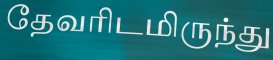
தேவரிடமிருந்து